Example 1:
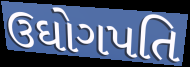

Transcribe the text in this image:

ઉઘોગપતિ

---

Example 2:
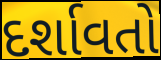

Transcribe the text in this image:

દર્શાવતો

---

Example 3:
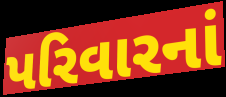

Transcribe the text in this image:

પરિવારનાં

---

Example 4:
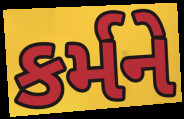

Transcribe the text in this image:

કર્મને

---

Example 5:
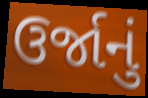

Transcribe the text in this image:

ઉર્જાનું